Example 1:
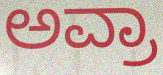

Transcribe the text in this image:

ಅವ್ರಾ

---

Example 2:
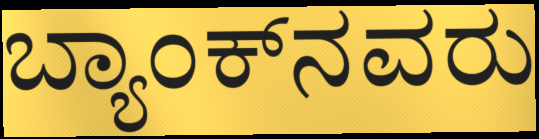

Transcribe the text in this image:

ಬ್ಯಾಂಕ್‌ನವರು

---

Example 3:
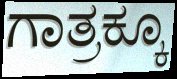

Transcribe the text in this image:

ಗಾತ್ರಕ್ಕೂ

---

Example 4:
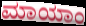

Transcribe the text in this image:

ಮಾಯಾಂ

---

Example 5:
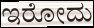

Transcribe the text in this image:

ಇರೋದು